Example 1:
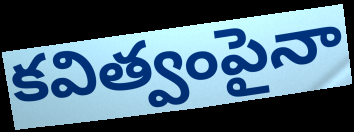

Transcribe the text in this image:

కవిత్వంపైనా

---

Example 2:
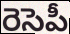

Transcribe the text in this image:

రెసెపీ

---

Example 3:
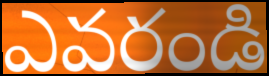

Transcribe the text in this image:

ఎవరండి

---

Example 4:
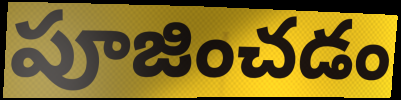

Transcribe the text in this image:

పూజించడం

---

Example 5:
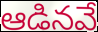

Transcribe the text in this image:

ఆడినవే